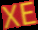
XE